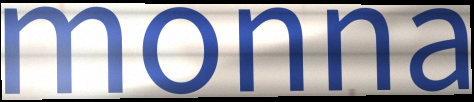
monna